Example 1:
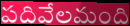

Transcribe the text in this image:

పదివేలమంది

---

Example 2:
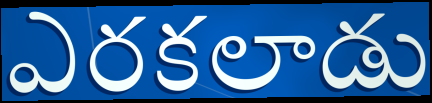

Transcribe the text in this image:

ఎరకలాడు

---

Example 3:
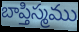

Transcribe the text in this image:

బాప్తిస్మము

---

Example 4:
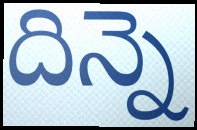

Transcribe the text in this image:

దిన్నె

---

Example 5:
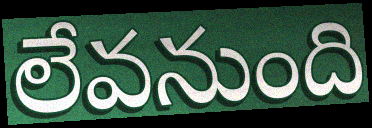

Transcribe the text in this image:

లేవనుంది